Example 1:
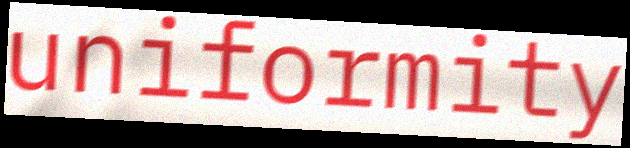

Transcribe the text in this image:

uniformity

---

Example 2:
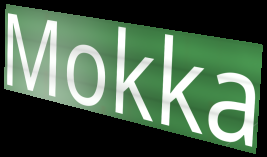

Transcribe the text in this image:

Mokka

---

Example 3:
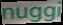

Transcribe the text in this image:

nuggi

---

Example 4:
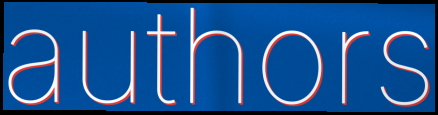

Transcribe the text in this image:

authors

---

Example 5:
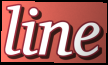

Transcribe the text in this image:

line